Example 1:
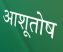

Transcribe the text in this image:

आशूतोष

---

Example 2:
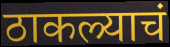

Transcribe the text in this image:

ठाकल्याचं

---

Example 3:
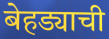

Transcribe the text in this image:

बेहड्याची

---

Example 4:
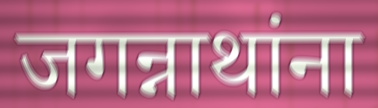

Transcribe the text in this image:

जगन्नाथांना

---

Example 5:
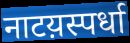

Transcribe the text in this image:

नाटय़स्पर्धा